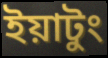
ইয়াটুং